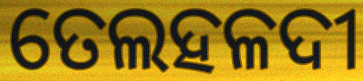
ତେଲହଳଦୀ